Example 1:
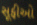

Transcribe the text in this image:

સૂફીઓ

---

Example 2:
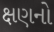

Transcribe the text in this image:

ક્ષણનો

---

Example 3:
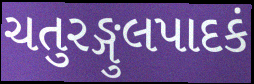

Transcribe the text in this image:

ચતુરઙ્ગુલપાદકં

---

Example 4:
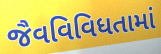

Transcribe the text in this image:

જૈવવિવિધતામાં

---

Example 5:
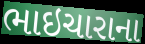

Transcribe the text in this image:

ભાઇચારાના